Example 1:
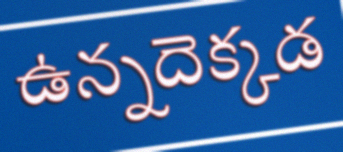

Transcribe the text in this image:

ఉన్నదెక్కడ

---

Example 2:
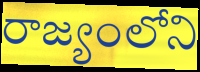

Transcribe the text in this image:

రాజ్యంలోని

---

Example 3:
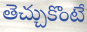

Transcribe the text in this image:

తెచ్చుకొంటే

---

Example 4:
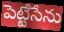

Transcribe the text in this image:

పెట్టేసేను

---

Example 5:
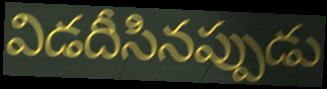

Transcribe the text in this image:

విడదీసినప్పుడు